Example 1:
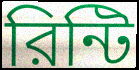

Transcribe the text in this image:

রিন্টি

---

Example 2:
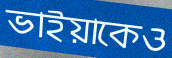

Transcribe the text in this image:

ভাইয়াকেও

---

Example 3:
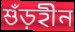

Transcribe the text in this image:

শুঁড়হীন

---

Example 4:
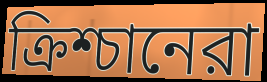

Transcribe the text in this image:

ক্রিশ্চানেরা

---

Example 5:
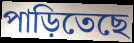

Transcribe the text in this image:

পাড়িতেছে